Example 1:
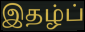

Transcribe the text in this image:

இதழ்ப்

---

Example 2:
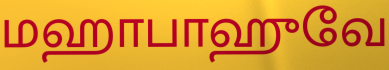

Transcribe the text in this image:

மஹாபாஹுவே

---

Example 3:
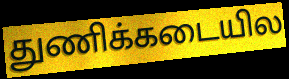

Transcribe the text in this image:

துணிக்கடையில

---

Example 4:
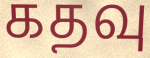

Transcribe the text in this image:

கதவு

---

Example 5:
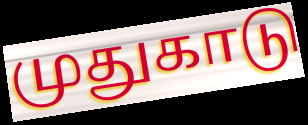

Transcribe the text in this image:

முதுகாடு